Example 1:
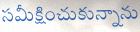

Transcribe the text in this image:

సమీక్షించుకున్నాను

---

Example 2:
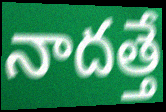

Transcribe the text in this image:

నాదత్తే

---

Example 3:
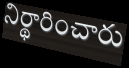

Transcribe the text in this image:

నిర్థారించారు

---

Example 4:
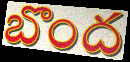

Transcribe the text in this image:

బొంద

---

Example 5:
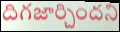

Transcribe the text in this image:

దిగజార్చిందని